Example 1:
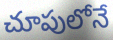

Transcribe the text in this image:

చూపులోనే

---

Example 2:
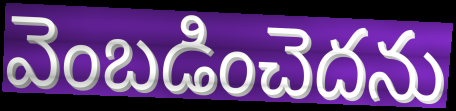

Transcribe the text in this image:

వెంబడించెదను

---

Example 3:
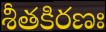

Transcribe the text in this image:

శీతకిరణః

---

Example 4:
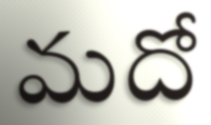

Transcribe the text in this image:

మదో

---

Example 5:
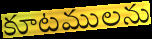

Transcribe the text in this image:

కూటములను